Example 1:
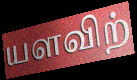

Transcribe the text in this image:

யளவிற்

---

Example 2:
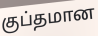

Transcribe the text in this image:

குப்தமான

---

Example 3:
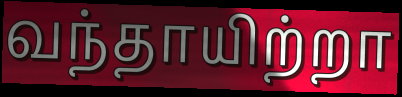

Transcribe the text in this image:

வந்தாயிற்றா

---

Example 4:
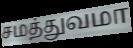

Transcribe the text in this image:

சமத்துவமா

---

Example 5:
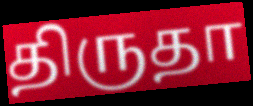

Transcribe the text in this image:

திருதா